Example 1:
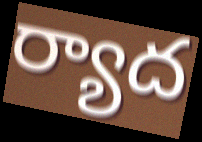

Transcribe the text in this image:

ర్యాద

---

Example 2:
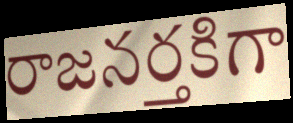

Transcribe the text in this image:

రాజనర్తకిగా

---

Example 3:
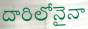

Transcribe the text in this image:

దారిలోనైనా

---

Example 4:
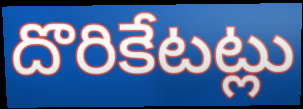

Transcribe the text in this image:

దొరికేటట్లు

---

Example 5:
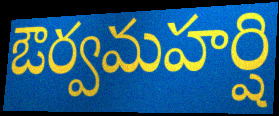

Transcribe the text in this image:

ఔర్వమహర్షి